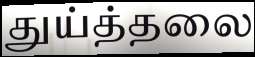
துய்த்தலை